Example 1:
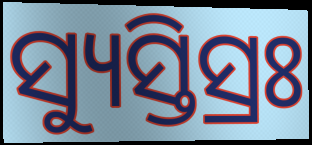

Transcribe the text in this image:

ସ୍ୟୁସ୍ତିସ୍ରଃ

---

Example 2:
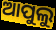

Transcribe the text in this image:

ଆପୁଲୁ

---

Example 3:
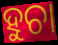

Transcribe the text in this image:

ହୁଚା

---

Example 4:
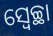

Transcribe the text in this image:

ସ୍ବେଚ୍ଛା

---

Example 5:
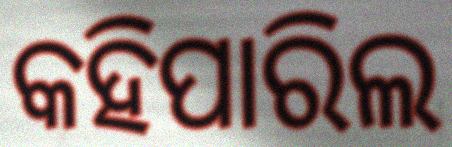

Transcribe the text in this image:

କହିପାରିଲ